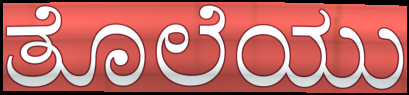
ತೊಲೆಯು